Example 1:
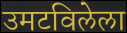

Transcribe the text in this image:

उमटविलेला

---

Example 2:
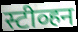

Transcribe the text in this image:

स्टीव्हन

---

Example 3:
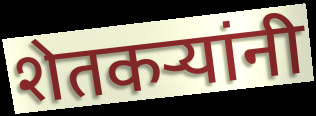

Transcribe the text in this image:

शेतकर्‍यांनी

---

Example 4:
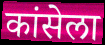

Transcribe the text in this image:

कांसेला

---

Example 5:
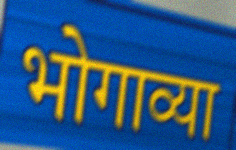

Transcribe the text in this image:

भोगाव्या